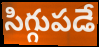
సిగ్గుపడే